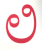
ಲಿ